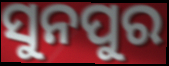
ସୁନପୁର